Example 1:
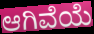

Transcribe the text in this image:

ಆಗಿವೆಯೆ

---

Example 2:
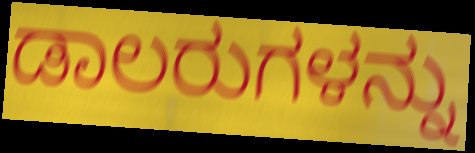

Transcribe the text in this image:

ಡಾಲರುಗಳನ್ನು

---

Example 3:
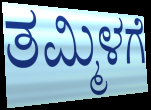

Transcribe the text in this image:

ತಮ್ಮಿಳಗೆ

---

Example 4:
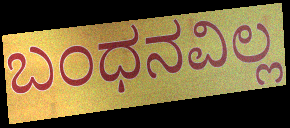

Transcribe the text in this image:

ಬಂಧನವಿಲ್ಲ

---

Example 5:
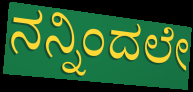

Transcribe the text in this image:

ನನ್ನಿಂದಲೇ